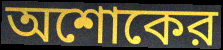
অশোকের